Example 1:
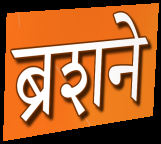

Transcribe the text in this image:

ब्रशने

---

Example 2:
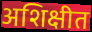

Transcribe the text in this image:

अशिक्षीत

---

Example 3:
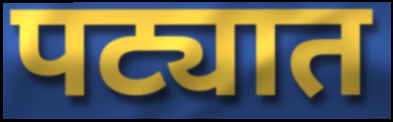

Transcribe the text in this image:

पट्यात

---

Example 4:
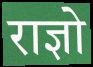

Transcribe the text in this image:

राज्ञो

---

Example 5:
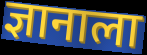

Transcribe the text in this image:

ज्ञानाला